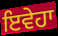
ਇਵੇਹਾ